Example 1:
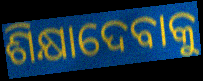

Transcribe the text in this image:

ଶିକ୍ଷାଦେବାକୁ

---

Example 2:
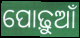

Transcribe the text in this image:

ପୋଢ଼ୁଆଁ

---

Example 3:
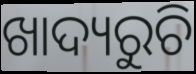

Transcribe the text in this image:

ଖାଦ୍ୟରୁଚି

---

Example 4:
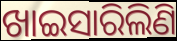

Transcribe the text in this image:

ଖାଇସାରିଲିଣି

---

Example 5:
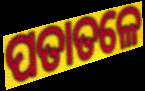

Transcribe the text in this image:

ପତାତଳେ